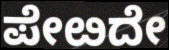
ಪೇೞದೇ